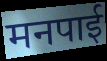
मनपाई